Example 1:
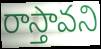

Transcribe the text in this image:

రాస్తావని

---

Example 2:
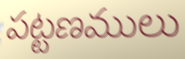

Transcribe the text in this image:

పట్టణములు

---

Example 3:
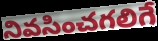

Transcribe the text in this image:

నివసించగలిగే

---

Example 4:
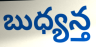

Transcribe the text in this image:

బుధ్యన్త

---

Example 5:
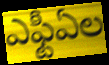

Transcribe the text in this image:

ఎఫ్టీఏల